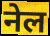
नेल